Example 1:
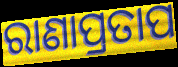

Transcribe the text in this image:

ରାଣାପ୍ରତାପ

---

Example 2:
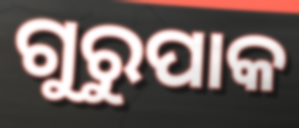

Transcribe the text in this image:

ଗୁରୁପାକ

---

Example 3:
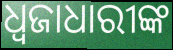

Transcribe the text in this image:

ଧ୍ୱଜାଧାରୀଙ୍କ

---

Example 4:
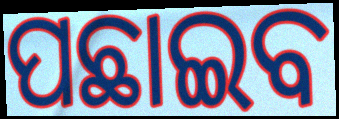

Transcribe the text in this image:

ପଛାଇବ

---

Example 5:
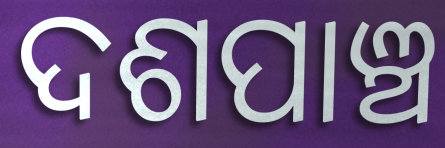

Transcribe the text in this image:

ଦଶପାଞ୍ଚ